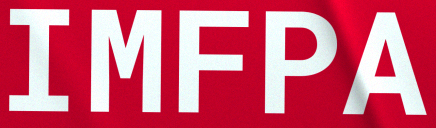
IMFPA